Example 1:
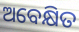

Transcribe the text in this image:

ଅବେକ୍ଷିତ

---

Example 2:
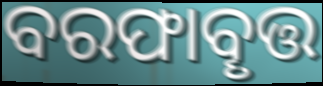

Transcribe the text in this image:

ବରଫାବୄତ୍ତ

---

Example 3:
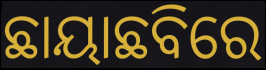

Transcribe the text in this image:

ଛାୟାଛବିରେ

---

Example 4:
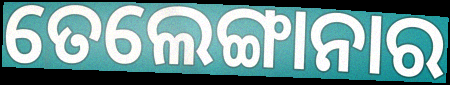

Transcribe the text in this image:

ତେଲେଙ୍ଗାନାର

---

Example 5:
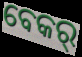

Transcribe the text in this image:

ବେକର୍